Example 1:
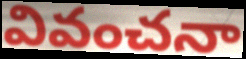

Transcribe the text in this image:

వివంచనా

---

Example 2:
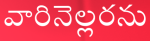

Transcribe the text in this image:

వారినెల్లరను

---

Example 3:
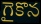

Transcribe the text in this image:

గైకొన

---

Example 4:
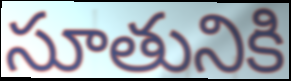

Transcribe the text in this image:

సూతునికి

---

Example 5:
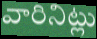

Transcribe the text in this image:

వారినిట్లు